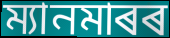
ম্যানমাৰৰ